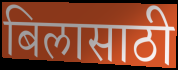
बिलासाठी